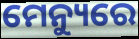
ମେନ୍ୟୁରେ